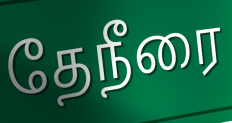
தேநீரை